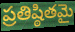
ప్రతిష్ఠితమై